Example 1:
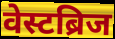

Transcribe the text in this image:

वेस्टब्रिज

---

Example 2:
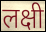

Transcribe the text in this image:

लक्षी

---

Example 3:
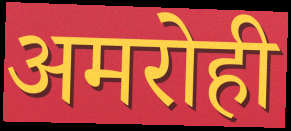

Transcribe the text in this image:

अमरोही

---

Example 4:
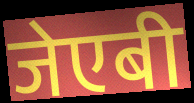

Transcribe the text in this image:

जेएबी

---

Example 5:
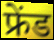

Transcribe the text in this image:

फ्रेंड